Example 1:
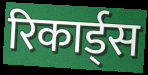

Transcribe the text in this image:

रिकार्ड्स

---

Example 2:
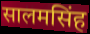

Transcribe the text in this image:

सालमसिंह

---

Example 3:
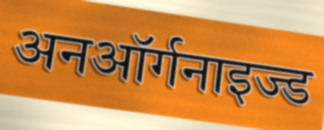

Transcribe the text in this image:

अनऑर्गनाइज्ड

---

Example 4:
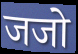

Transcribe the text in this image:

जजो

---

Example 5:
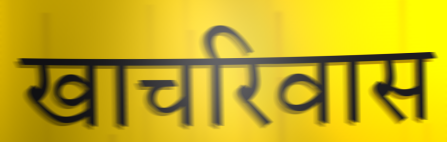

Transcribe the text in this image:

खाचरिवास